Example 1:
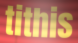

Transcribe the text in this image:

tithis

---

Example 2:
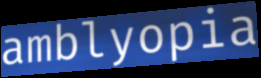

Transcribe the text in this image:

amblyopia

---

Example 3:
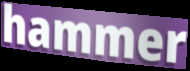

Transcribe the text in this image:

hammer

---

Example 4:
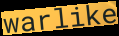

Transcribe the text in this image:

warlike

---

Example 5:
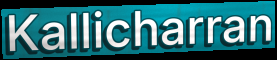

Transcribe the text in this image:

Kallicharran